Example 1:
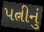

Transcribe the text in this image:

પત્નીનું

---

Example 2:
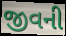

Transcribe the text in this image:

જીવની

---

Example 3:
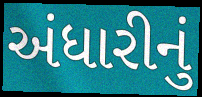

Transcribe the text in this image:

અંધારીનું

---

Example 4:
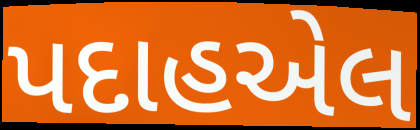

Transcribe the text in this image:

પદાહએલ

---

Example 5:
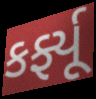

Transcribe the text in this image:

કર્ફ્યૂ